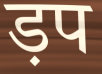
ड़प